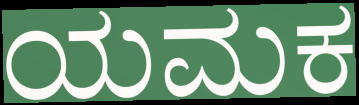
ಯಮಕ